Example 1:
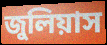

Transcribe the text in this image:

জুলিয়াস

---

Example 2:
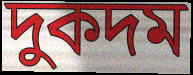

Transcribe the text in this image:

দুকদম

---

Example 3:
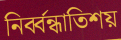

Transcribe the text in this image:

নির্ব্বন্ধাতিশয়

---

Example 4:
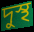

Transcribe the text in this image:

দুস্থ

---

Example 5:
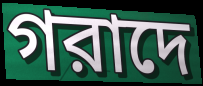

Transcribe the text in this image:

গরাদে